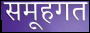
समूहगत